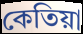
কেতিয়া